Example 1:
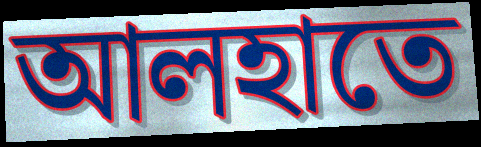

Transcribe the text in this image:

আলহাতে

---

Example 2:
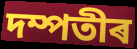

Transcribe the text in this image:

দম্পতীৰ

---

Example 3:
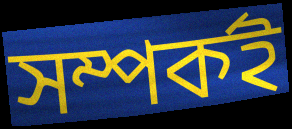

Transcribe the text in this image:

সম্পৰ্কই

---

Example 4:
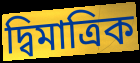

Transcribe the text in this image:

দ্বিমাত্ৰিক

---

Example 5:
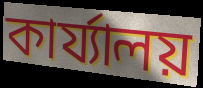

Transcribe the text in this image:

কাৰ্য্যালয়